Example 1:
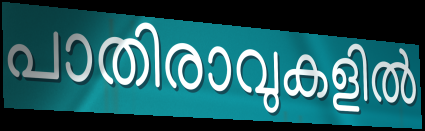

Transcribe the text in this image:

പാതിരാവുകളിൽ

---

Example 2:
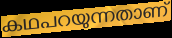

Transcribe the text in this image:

കഥപറയുന്നതാണ്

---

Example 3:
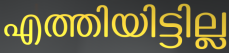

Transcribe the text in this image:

എത്തിയിട്ടില്ല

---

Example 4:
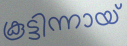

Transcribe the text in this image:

കൂട്ടിന്നായ്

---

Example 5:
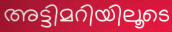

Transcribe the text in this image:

അട്ടിമറിയിലൂടെ